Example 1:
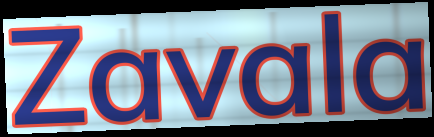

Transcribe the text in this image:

Zavala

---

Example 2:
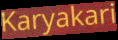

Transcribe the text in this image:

Karyakari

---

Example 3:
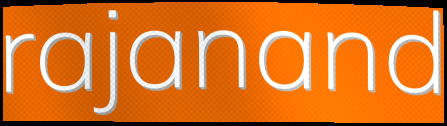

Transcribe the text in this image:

rajanand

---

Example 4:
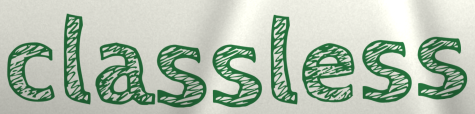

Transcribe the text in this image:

classless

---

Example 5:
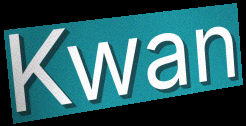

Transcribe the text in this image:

Kwan